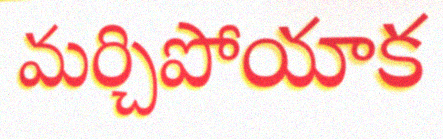
మర్చిపోయాక